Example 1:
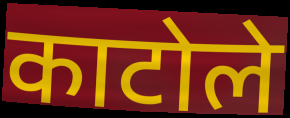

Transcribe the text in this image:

काटोले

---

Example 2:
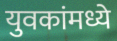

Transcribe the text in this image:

युवकांमध्ये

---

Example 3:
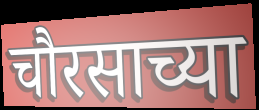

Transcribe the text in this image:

चौरसाच्या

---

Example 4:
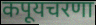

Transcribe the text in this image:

कपूयचरणा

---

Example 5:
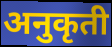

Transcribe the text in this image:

अनुकृती